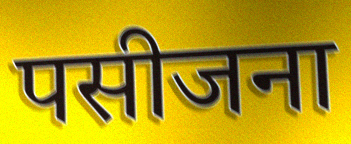
पसीजना